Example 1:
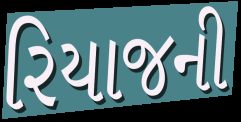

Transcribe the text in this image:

રિયાજની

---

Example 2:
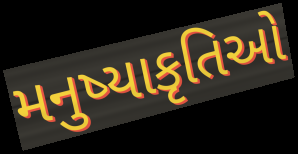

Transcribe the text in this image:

મનુષ્યાકૃતિઓ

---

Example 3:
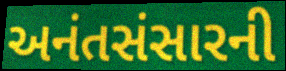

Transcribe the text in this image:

અનંતસંસારની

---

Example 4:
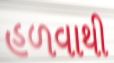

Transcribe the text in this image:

હળવાથી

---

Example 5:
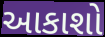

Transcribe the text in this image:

આકાશો